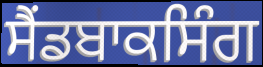
ਸੈਂਡਬਾਕਸਿੰਗ